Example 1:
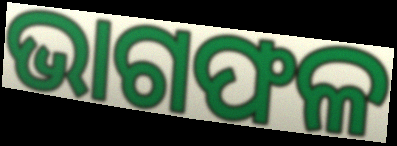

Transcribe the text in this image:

ଭାଗଫଳ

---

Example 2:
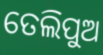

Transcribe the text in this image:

ତେଲିପୁଅ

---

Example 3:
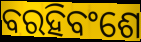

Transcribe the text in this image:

ବରହିବଂଶେ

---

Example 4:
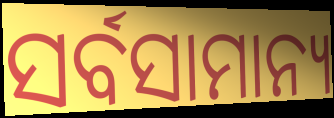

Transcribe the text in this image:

ସର୍ବସାମାନ୍ୟ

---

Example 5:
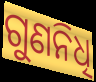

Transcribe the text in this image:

ଗୁଣନିଧି